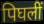
पिघलीं